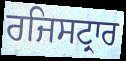
ਰਜਿਸਟ੍ਰਾਰ